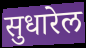
सुधारेल